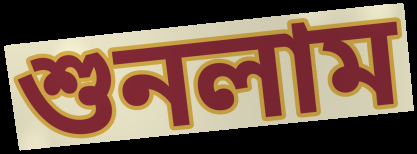
শুনলাম